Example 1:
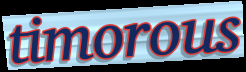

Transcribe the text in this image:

timorous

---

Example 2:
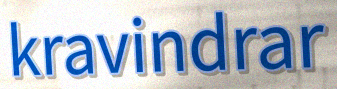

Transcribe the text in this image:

kravindrar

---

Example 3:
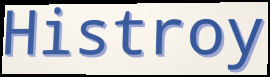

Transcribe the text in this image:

Histroy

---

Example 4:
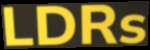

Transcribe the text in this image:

LDRs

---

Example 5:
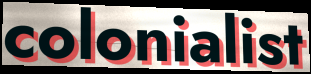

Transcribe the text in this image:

colonialist